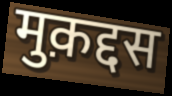
मुक़द्दस